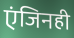
एंजिनही